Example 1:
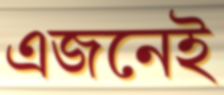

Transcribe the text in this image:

এজনেই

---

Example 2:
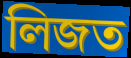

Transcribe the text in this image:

লিজত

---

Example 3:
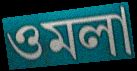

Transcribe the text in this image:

ওমলা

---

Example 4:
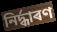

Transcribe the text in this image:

নিৰ্দ্ধাৰণ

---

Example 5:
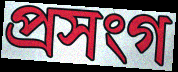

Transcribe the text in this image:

প্ৰসংগ